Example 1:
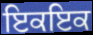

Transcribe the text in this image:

ਇਕਇਕ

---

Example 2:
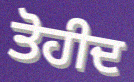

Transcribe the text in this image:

ਤੋਹੀਦ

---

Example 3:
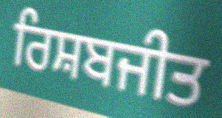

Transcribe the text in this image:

ਰਿਸ਼ਬਜੀਤ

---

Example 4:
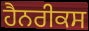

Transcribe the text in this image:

ਹੈਨਰੀਕਸ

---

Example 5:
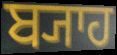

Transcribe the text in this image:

ਬ੍ਯਾਹ